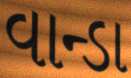
વાન્ડા